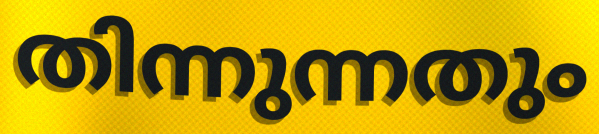
തിന്നുന്നതും